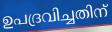
ഉപദ്രവിച്ചതിന്